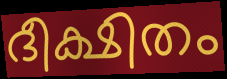
ദീക്ഷിതം